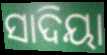
ସାଦିୟା